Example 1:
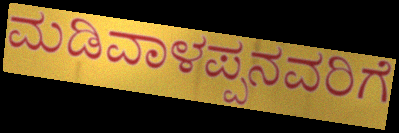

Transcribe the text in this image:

ಮಡಿವಾಳಪ್ಪನವರಿಗೆ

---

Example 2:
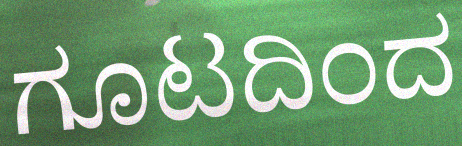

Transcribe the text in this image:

ಗೂಟದಿಂದ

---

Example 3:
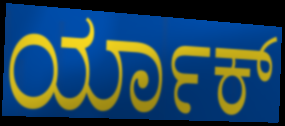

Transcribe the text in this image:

ರ್ಯಾಕ್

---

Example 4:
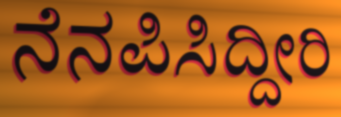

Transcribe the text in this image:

ನೆನಪಿಸಿದ್ದೀರಿ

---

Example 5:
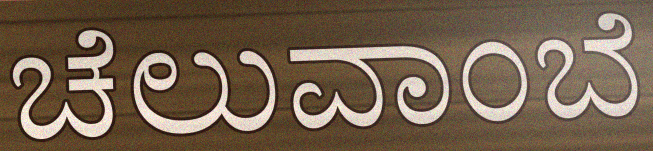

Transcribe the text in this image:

ಚೆಲುವಾಂಬೆ